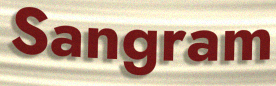
Sangram